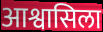
आश्वासिला